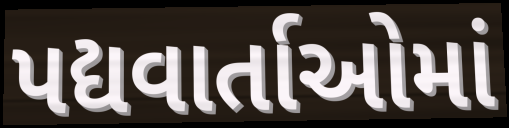
પદ્યવાર્તાઓમાં